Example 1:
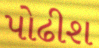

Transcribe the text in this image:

પોઢીશ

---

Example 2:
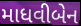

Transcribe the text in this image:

માધવીબેન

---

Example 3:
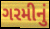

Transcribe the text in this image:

ગરમીનું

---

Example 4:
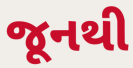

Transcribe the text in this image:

જૂનથી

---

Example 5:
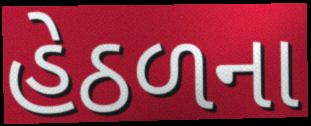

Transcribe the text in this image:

હેઠળના